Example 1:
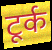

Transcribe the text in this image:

टूर्क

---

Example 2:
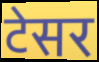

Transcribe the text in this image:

टेसर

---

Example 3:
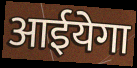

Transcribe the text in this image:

आईयेगा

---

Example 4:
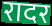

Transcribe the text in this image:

रादर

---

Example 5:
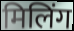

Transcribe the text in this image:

मिलिंग